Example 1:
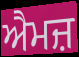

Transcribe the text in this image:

ਐਮਜ਼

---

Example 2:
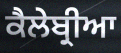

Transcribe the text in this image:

ਕੈਲੇਬ੍ਰੀਆ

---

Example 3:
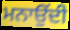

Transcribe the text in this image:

ਮਨਾਉਂਦੀ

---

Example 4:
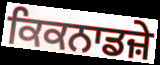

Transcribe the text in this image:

ਕਿਕਨਾਡਜ਼ੇ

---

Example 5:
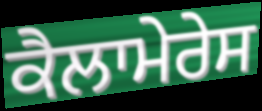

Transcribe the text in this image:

ਕੈਲਾਮੇਰੇਸ